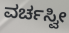
ವರ್ಚಸ್ವೀ